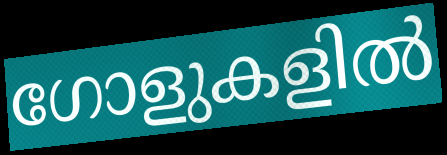
ഗോളുകളിൽ